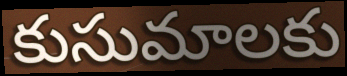
కుసుమాలకు